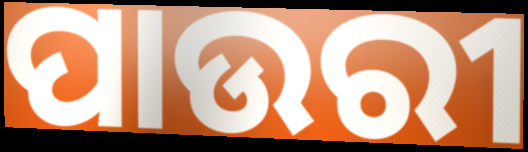
ପାଉରୀ